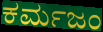
ಕರ್ಮಜಂ